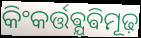
କିଂକର୍ତ୍ତଵ୍ଯଵିମୂଢ଼